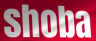
shoba